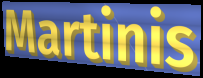
Martinis